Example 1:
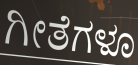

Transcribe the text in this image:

ಗೀತೆಗಳೂ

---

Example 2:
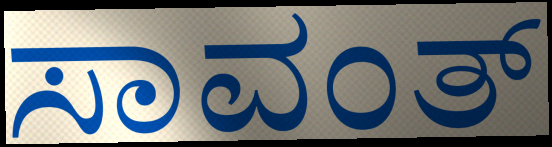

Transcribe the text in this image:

ಸಾವಂತ್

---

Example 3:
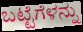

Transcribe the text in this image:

ಬಟ್ಟೆಗೆಳನ್ನು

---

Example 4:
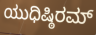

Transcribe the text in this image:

ಯುಧಿಷ್ಠಿರಮ್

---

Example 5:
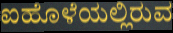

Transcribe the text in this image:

ಐಹೊಳೆಯಲ್ಲಿರುವ